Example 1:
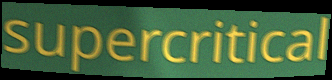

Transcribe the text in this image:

supercritical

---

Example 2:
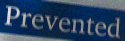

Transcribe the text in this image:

Prevented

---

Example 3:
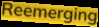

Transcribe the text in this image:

Reemerging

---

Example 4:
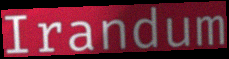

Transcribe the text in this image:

Irandum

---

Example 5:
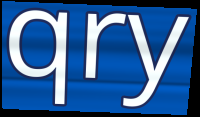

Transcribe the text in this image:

qry